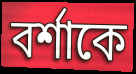
বর্শাকে